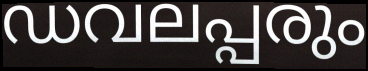
ഡവലപ്പരും